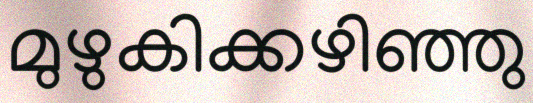
മുഴുകിക്കഴിഞ്ഞു